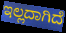
ಇಲ್ಲದಾಗಿದೆ